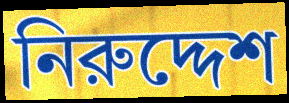
নিরুদ্দেশ